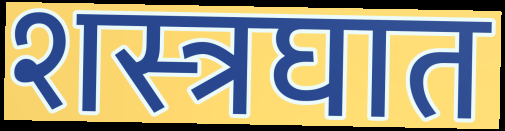
शस्त्रघात